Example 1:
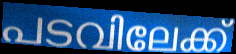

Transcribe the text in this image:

പടവിലേക്ക്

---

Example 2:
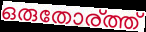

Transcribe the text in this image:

ഒരുതോര്ത്ത്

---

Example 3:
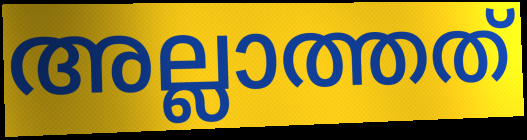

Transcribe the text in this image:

അല്ലാത്തത്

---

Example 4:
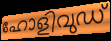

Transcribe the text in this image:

ഹോളിവുഡ്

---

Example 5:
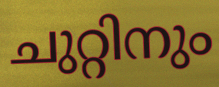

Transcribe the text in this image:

ചുറ്റിനും